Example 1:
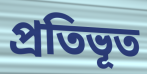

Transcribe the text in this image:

প্রতিভূত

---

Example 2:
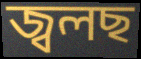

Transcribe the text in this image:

জ্বলছ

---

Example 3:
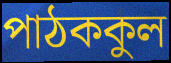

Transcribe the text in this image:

পাঠককুল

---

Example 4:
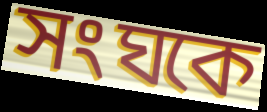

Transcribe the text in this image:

সংঘকে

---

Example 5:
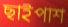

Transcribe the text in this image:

ছাইপাশ